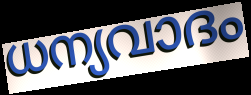
ധന്യവാദം